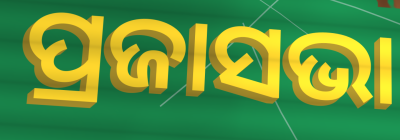
ପ୍ରଜାସଭା